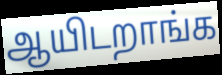
ஆயிடறாங்க